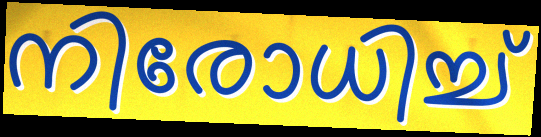
നിരോധിച്ച്